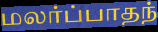
மலர்ப்பாதந்